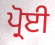
ਪ੍ਰੋਈ